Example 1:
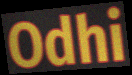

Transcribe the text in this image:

Odhi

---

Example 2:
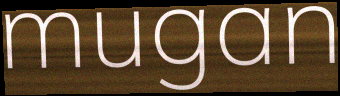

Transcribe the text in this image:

mugan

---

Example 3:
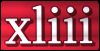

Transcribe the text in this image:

xliii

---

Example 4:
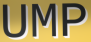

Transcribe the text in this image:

UMP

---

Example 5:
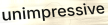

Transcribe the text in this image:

unimpressive